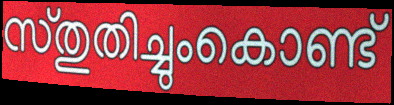
സ്തുതിച്ചുംകൊണ്ട്